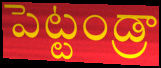
పెట్టండ్రా